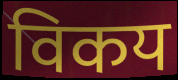
विकय